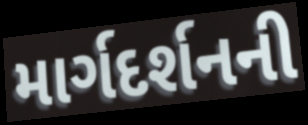
માર્ગદર્શનની